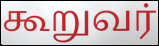
கூறுவர்